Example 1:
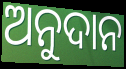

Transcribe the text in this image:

ଅନୁଦାନ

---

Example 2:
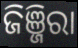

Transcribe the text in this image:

ଜିଞ୍ଜିରା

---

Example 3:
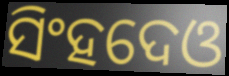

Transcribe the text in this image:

ସିଂହଦେଓ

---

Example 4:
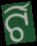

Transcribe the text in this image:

ର୍ଟି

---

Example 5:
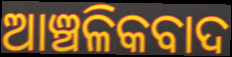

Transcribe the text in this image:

ଆଞ୍ଚଳିକବାଦ